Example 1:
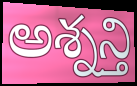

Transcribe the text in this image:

అశ్నన్తి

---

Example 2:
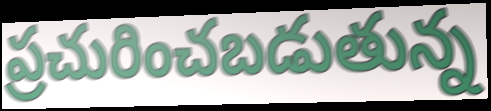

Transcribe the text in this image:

ప్రచురించబడుతున్న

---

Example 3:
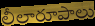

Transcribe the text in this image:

లీలారూపాలు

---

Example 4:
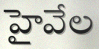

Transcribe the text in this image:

హైవేల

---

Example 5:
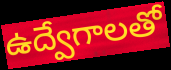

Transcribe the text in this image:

ఉద్వేగాలతో